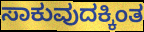
ಸಾಕುವುದಕ್ಕಿಂತ